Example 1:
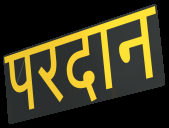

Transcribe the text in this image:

परदान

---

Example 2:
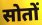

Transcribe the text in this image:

सोतों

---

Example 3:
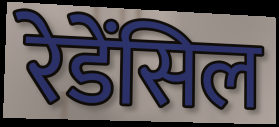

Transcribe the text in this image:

रेडेंसिल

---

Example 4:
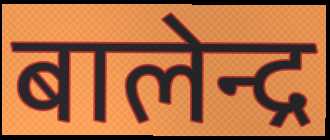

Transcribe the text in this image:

बालेन्द्र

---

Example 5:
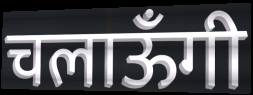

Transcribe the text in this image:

चलाऊँगी